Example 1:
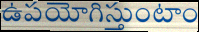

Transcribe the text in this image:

ఉపయోగిస్తుంటాం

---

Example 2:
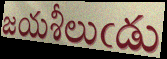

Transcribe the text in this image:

జయశీలుఁడు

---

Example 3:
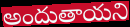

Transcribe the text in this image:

అందుతాయని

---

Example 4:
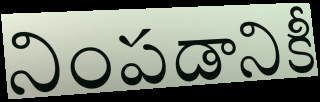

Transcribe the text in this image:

నింపడానికీ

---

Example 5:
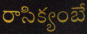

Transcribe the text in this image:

రాసిక్యంబే